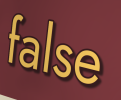
false